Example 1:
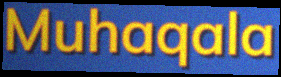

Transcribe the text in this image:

Muhaqala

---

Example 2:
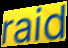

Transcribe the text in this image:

raid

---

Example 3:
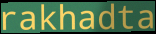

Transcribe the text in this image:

rakhadta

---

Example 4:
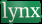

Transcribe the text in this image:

lynx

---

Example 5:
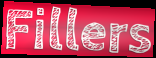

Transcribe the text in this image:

Fillers